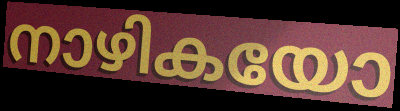
നാഴികയോ